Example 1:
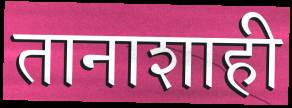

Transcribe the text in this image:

तानाशाही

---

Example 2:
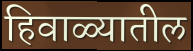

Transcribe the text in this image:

हिवाळ्यातील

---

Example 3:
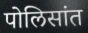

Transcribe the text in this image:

पोलिसांत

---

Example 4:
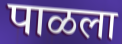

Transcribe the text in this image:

पाळला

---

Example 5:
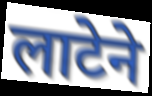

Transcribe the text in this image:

लाटेने